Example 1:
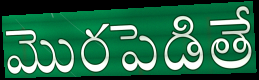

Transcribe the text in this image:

మొరపెడితే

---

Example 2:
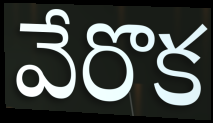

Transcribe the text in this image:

వేరొక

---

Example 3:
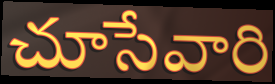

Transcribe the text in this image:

చూసేవారి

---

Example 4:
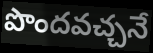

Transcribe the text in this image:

పొందవచ్చనే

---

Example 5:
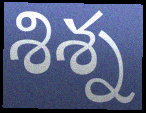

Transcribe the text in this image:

శిశ్న